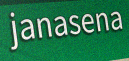
janasena